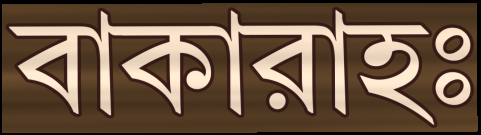
বাকারাহঃ